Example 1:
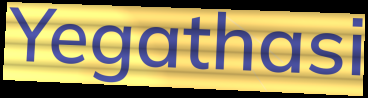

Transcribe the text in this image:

Yegathasi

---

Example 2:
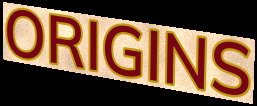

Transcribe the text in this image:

ORIGINS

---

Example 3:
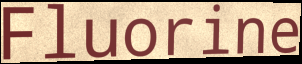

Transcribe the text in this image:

Fluorine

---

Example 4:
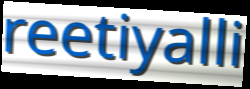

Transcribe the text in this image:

reetiyalli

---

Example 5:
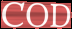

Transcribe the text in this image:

COD